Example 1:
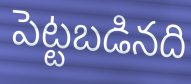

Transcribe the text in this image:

పెట్టబడినది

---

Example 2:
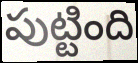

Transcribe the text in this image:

పుట్టింది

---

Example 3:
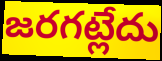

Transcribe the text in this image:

జరగట్లేదు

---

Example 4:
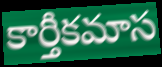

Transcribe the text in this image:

కార్తీకమాస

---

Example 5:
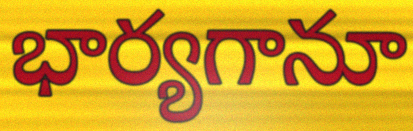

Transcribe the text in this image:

భార్యగానూ